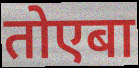
तोएबा